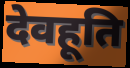
देवहूति